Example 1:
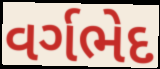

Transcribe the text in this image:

વર્ગભેદ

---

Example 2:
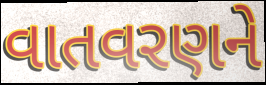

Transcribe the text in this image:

વાતવરણને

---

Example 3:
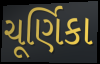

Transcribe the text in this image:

ચૂર્ણિકા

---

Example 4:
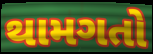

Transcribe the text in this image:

થામગતો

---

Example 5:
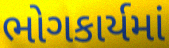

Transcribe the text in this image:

ભોગકાર્યમાં